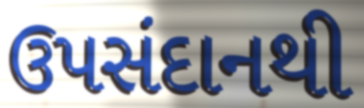
ઉપસંદાનથી